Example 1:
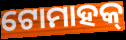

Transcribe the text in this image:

ଟୋମାହକ୍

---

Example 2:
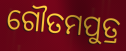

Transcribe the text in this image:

ଗୌତମପୁତ୍ର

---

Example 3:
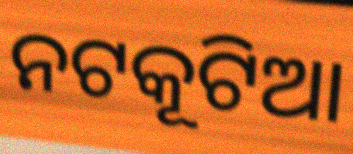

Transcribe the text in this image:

ନଟକୂଟିଆ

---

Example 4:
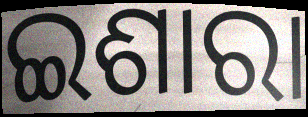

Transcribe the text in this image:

ଇଶାରା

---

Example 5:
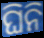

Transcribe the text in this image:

ଘିନି